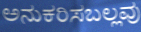
ಅನುಕರಿಸಬಲ್ಲವು